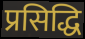
प्रसिद्धि